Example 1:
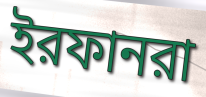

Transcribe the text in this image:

ইরফানরা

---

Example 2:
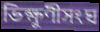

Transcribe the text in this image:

ভিক্ষুণীসংঘ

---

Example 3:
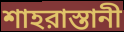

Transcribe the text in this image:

শাহরাস্তানী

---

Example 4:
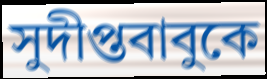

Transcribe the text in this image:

সুদীপ্তবাবুকে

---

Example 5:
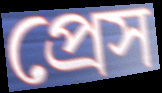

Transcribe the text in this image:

প্রেস